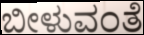
ಬೀಳುವಂತೆ